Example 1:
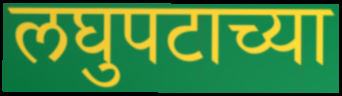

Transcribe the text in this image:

लघुपटाच्या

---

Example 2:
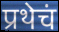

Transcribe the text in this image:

प्रथेचं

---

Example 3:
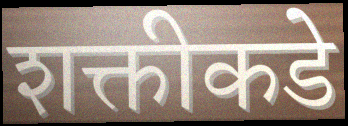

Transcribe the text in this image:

शक्तीकडे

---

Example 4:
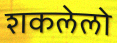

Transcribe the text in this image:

शकलेलो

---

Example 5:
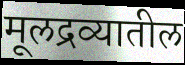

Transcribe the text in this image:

मूलद्रव्यातील